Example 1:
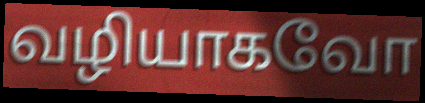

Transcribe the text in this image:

வழியாகவோ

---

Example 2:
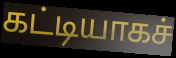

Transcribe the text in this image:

கட்டியாகச்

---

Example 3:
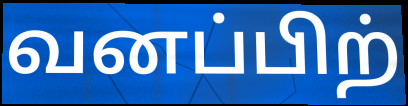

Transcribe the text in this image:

வனப்பிற்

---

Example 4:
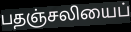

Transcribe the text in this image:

பதஞ்சலியைப்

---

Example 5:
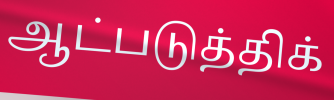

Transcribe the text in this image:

ஆட்படுத்திக்